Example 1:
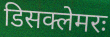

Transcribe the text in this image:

डिसक्लेमरः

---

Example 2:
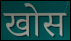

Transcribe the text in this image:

खोस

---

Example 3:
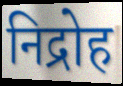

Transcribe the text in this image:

निद्रोह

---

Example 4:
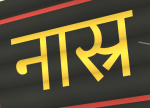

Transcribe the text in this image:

नास्र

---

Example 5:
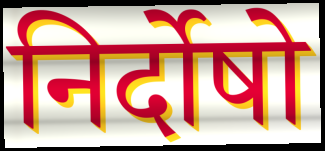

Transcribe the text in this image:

निर्दोषो